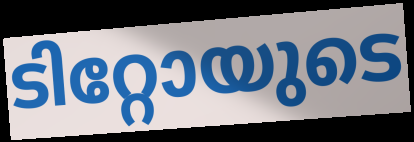
ടിറ്റോയുടെ